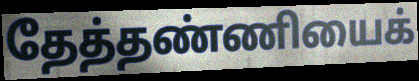
தேத்தண்ணியைக்